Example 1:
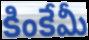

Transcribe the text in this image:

కింకేమీ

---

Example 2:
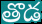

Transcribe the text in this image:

తొడ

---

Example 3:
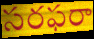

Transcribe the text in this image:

సరఫరా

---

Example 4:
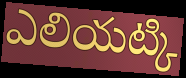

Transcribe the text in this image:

ఎలియట్కి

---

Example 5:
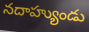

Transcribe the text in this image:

నదాహ్యుండు